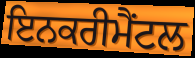
ਇਨਕਰੀਮੈਂਟਲ